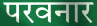
परवनार